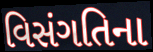
વિસંગતિના